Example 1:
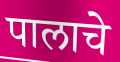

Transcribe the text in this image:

पालाचे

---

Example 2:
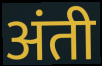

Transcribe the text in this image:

अंती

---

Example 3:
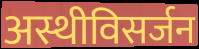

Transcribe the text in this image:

अस्थीविसर्जन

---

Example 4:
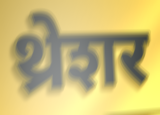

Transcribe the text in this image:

थ्रेशर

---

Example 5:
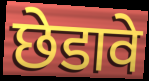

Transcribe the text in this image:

छेडावे